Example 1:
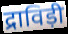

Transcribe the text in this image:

द्राविड़ी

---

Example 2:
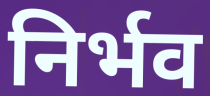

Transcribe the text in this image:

निर्भव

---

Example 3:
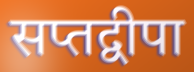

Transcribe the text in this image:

सप्तद्वीपा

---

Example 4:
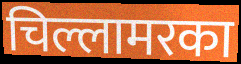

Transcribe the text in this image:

चिल्लामरका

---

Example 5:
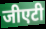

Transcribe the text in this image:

जीएटी